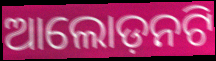
ଆଲୋଡ଼ନଟି